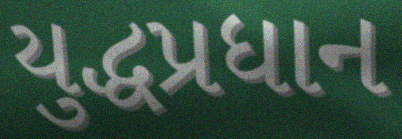
યુદ્ધપ્રધાન